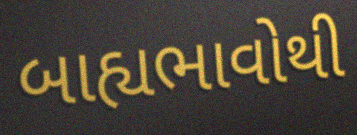
બાહ્યભાવોથી